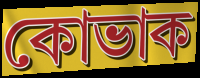
কোভাক